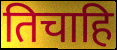
तिचाहि